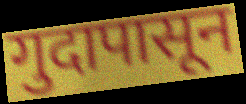
गुदापासून